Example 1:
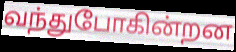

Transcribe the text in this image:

வந்துபோகின்றன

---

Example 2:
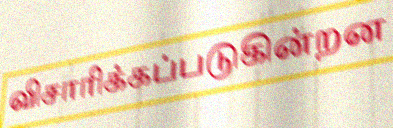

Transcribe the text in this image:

விசாரிக்கப்படுகின்றன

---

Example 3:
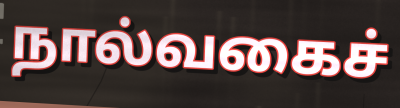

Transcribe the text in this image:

நால்வகைச்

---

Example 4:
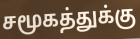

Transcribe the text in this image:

சமூகத்துக்கு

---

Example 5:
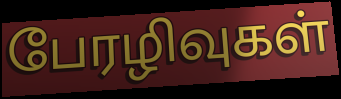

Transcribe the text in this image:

பேரழிவுகள்